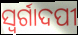
ସ୍ବର୍ଗାଦପୀ